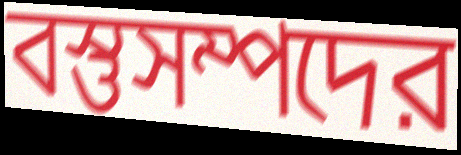
বস্তুসম্পদের